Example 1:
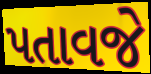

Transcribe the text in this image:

પતાવજે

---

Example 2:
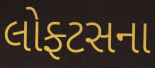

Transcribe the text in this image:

લોફ્ટસના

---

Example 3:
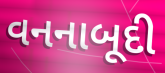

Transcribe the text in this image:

વનનાબૂદી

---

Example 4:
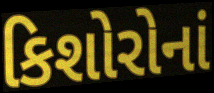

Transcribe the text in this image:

કિશોરોનાં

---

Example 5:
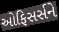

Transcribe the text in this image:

ઓફિસર્સને